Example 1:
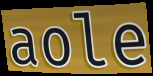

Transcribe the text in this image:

aole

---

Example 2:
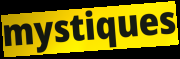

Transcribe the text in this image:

mystiques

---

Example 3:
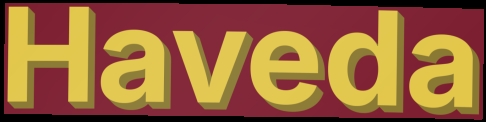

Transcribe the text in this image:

Haveda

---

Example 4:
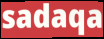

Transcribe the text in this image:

sadaqa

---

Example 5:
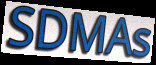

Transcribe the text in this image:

SDMAs